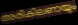
അരികിലണയും